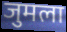
जुमला